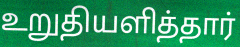
உறுதியளித்தார்